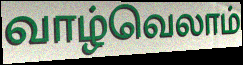
வாழ்வெலாம்